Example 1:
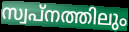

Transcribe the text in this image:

സ്വപ്നത്തിലും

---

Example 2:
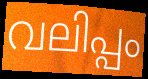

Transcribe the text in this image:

വലിപ്പം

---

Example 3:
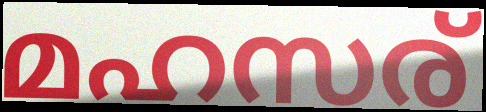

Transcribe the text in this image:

മഹസര്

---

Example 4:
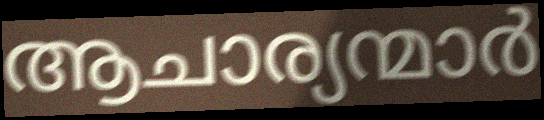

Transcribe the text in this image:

ആചാര്യന്മാർ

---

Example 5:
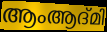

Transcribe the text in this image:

ആംആദ്മി